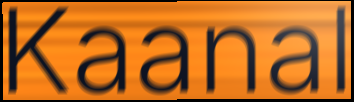
Kaanal